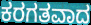
ಕರಗತವಾದ